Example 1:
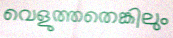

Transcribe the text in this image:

വെളുത്തതെങ്കിലും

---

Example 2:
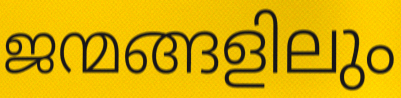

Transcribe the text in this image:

ജന്മങ്ങളിലും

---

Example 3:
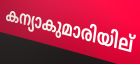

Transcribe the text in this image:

കന്യാകുമാരിയില്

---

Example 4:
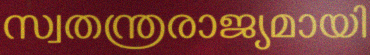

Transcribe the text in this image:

സ്വതന്ത്രരാജ്യമായി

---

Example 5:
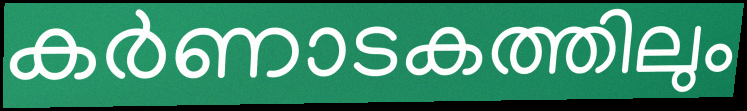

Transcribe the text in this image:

കർണാടകത്തിലും